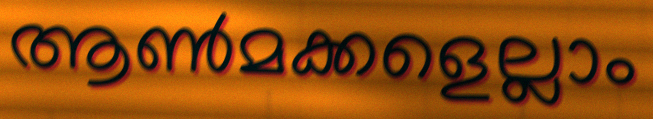
ആൺമക്കളെല്ലാം